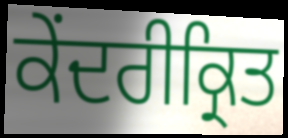
ਕੇਂਦਰੀਕ੍ਰਿਤ